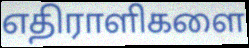
எதிராளிகளை